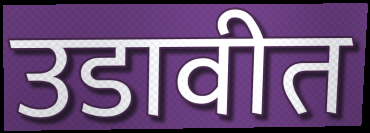
उडावीत